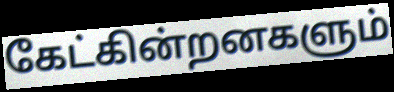
கேட்கின்றனகளும்